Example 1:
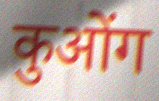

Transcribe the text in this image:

कुओंग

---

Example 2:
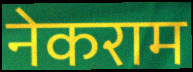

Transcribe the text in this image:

नेकराम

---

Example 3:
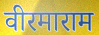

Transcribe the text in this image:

वीरमाराम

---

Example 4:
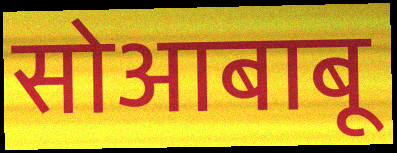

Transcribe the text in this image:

सोआबाबू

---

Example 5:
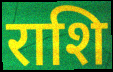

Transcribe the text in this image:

राशि